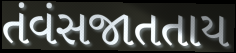
તંવંસજાતતાય